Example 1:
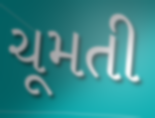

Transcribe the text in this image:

ચૂમતી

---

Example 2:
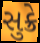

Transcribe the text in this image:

સુક્રે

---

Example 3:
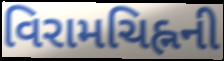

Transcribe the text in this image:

વિરામચિહ્નની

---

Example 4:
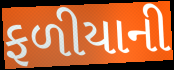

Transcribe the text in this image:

ફળીયાની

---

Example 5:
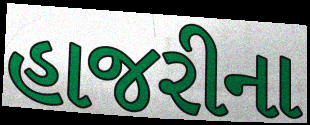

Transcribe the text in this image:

હાજરીના